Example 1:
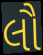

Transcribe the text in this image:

લૌ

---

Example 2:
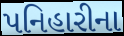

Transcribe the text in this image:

પનિહારીના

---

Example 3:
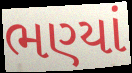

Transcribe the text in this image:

ભણ્યાં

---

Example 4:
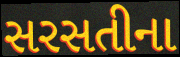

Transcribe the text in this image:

સરસતીના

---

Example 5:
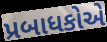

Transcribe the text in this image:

પ્રબાધકોએ